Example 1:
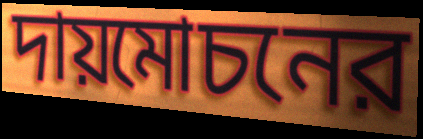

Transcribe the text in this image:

দায়মোচনের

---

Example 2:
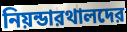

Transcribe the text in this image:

নিয়ন্ডারথালদের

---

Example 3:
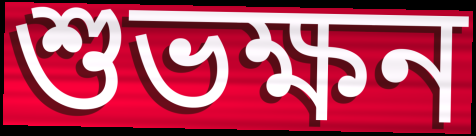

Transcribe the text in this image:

শুভক্ষন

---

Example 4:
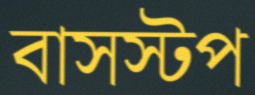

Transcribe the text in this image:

বাসস্টপ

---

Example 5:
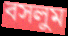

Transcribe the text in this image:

বসলুম